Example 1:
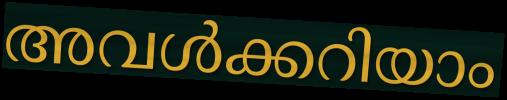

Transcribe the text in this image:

അവൾക്കറിയാം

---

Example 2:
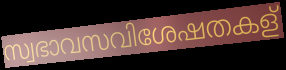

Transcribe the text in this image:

സ്വഭാവസവിശേഷതകള്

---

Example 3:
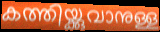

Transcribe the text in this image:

കത്തിയ്ക്കുവാനുള്ള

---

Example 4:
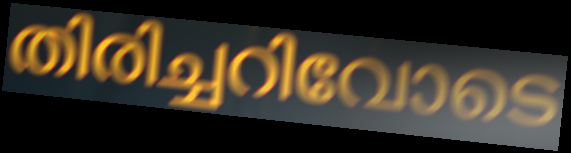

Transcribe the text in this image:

തിരിച്ചറിവോടെ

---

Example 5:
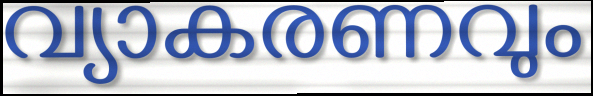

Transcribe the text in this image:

വ്യാകരണവും